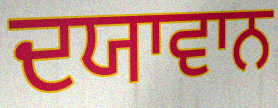
ਦਯਾਵਾਨ